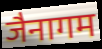
जैनागम